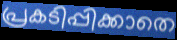
പ്രകടിപ്പിക്കാതെ